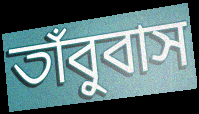
তাঁবুবাস